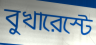
বুখারেস্টে